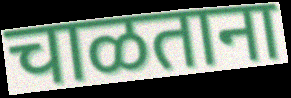
चाळताना